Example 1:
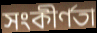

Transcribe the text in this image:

সংকীর্ণতা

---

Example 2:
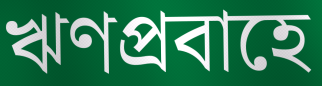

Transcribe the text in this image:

ঋণপ্রবাহে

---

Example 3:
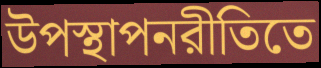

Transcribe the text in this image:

উপস্থাপনরীতিতে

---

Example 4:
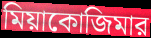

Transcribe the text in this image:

মিয়াকোজিমার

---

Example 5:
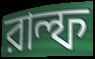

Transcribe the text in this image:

রাল্ফ